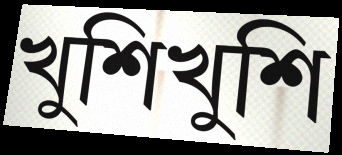
খুশিখুশি